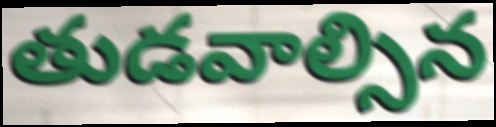
తుడవాల్సిన